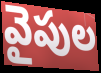
వైపుల